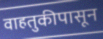
वाहतुकीपासून